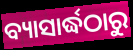
ବ୍ୟାସାର୍ଦ୍ଧଠାରୁ